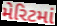
મેરિટમાં